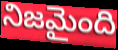
నిజమైంది